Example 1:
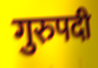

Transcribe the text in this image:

गुरुपदी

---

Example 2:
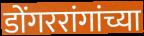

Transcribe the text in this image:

डोंगररांगांच्या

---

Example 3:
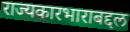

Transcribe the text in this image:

राज्यकारभाराबद्दल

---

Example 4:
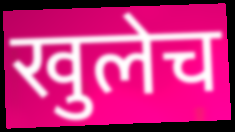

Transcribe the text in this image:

खुलेच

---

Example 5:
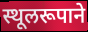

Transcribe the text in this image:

स्थूलरूपाने